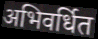
अभिवर्धित